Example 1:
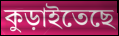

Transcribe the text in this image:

কুড়াইতেছে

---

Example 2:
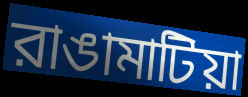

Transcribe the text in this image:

রাঙামাটিয়া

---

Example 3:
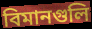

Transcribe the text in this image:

বিমানগুলি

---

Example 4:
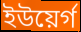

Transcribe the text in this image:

ইউয়ের্গ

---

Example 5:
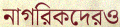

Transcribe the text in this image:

নাগরিকদেরও